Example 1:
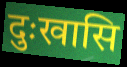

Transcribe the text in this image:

दुःखासि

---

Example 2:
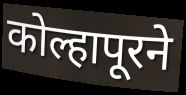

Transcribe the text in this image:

कोल्हापूरने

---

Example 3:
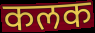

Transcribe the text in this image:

कलक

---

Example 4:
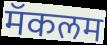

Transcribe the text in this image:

मॅकलम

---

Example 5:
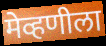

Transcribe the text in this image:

मेव्हणीला